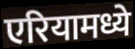
एरियामध्ये